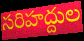
సరిహద్దుల